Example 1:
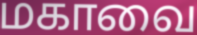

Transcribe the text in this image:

மகாவை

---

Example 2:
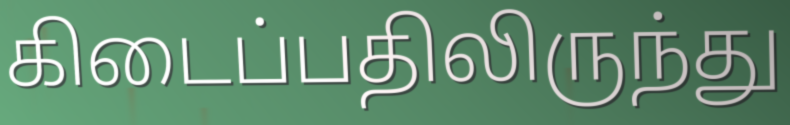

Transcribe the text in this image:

கிடைப்பதிலிருந்து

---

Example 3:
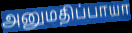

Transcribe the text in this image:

அனுமதிப்பாயா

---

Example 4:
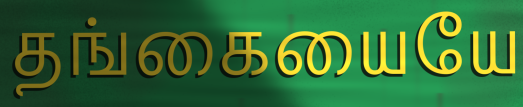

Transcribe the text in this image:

தங்கையையே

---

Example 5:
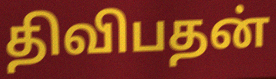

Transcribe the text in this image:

திவிபதன்